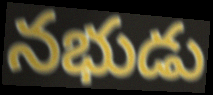
నభుడు